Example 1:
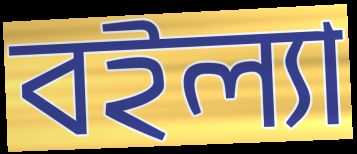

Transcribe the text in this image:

বইল্যা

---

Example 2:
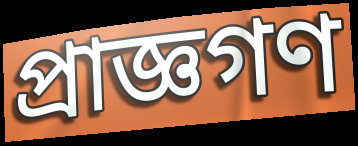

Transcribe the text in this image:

প্রাজ্ঞগণ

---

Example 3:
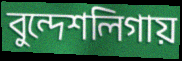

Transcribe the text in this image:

বুন্দেশলিগায়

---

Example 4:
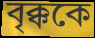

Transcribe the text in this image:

বৃক্ককে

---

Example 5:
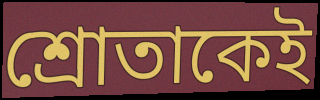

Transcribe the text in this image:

শ্রোতাকেই